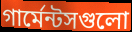
গার্মেন্টসগুলো